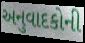
અનુવાદકોની